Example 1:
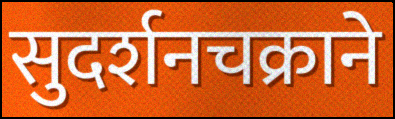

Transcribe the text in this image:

सुदर्शनचक्राने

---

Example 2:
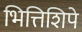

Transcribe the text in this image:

भित्तिशिपे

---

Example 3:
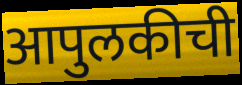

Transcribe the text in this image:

आपुलकीची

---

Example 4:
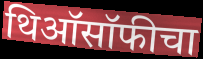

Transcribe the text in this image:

थिऑसॉफीचा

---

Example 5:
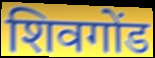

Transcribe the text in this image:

शिवगोंड